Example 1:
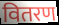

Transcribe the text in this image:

वितरण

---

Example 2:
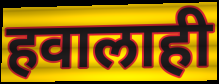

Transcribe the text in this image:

हवालाही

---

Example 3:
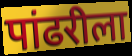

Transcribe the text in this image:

पांढरीला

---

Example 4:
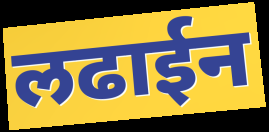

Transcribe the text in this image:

लढाईन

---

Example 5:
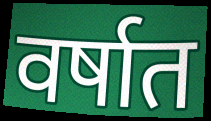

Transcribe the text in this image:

वर्षात